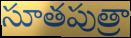
సూతపుత్రా